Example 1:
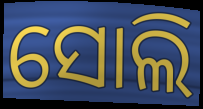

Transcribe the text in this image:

ସୋଲି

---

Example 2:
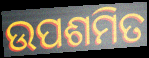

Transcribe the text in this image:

ଉପଶମିତ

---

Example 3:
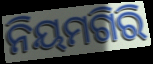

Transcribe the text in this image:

ନିୟମଗିରି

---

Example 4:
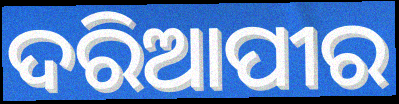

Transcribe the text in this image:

ଦରିଆପୀର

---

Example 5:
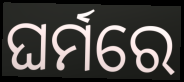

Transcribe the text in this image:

ଘର୍ମରେ